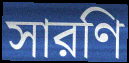
সারণি